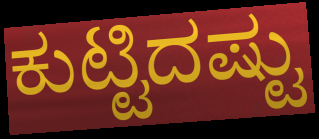
ಕುಟ್ಟಿದಷ್ಟು